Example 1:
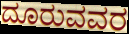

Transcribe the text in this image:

ದೂರುವವರ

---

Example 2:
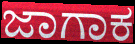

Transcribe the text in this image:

ಜಾಗಾಕ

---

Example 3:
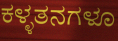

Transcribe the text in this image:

ಕಳ್ಳತನಗಳೂ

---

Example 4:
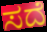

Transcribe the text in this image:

ಸದೆ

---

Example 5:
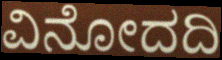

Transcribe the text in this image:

ವಿನೋದದಿ